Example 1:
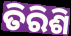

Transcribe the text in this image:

ତିରିଶି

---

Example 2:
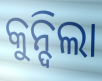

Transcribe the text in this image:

କୁନ୍ଦିଲା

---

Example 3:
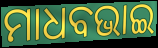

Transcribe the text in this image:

ମାଧବଭାଇ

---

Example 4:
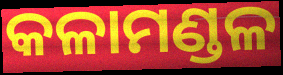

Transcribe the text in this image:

କଳାମଣ୍ଡଳ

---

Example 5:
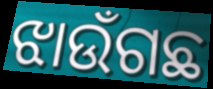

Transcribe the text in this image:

ଝାଉଁଗଛ